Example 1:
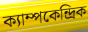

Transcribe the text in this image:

ক্যাম্পকেন্দ্রিক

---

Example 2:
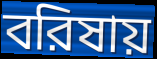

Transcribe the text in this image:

বরিষায়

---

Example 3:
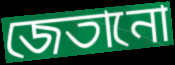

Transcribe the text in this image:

জেতানো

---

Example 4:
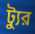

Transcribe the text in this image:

ট্যুর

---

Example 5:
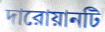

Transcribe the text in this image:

দারোয়ানটি